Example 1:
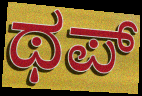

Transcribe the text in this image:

ಥಪ್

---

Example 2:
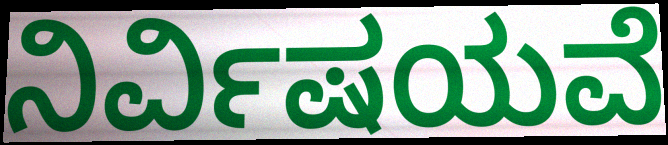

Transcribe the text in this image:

ನಿರ್ವಿಷಯವೆ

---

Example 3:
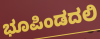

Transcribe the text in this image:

ಭೂಪಿಂಡದಲಿ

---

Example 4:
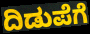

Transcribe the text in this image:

ದಿಡುಪೆಗೆ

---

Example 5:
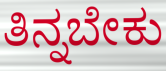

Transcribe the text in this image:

ತಿನ್ನಬೇಕು